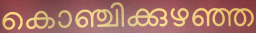
കൊഞ്ചിക്കുഴഞ്ഞ